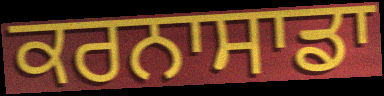
ਕਰਨਾਸਾਡਾ